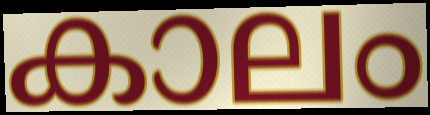
കാലം